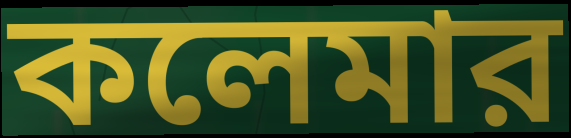
কলেমার